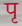
पृ